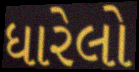
ધારેલો